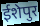
ईशेपुर